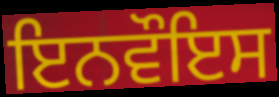
ਇਨਵੌਇਸ